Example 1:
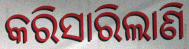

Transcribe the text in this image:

କରିସାରିଲାଣି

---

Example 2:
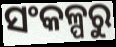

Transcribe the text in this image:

ସଂକଳ୍ପରୁ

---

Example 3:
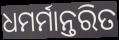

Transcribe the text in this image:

ଧମର୍ମାନ୍ତରିତ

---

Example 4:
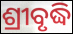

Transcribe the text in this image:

ଶ୍ରୀବୃଦ୍ଧି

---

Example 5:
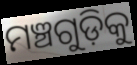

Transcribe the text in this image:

ମଞ୍ଚଗୁଡ଼ିକୁ